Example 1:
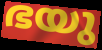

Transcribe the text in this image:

ഭയു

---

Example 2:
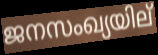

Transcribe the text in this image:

ജനസംഖ്യയില്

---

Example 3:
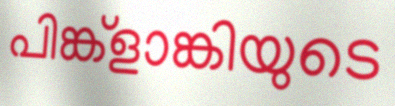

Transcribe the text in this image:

പിങ്ക്ളാങ്കിയുടെ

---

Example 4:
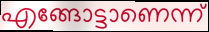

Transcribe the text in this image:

എങ്ങോട്ടാണെന്ന്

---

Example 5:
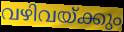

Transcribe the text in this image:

വഴിവയ്ക്കും